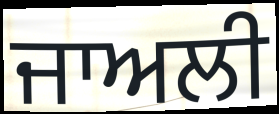
ਜਾਅਲੀ